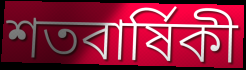
শতবাৰ্ষিকী